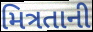
મિત્રતાની